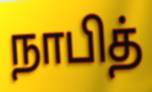
நாபித்